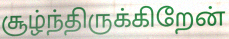
சூழ்ந்திருக்கிறேன்